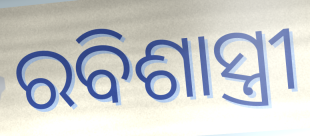
ରବିଶାସ୍ତ୍ରୀ